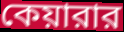
কেয়ারার